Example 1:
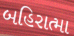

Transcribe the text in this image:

બહિરાત્મા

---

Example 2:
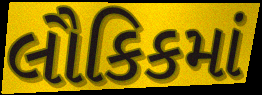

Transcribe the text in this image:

લૌકિકમાં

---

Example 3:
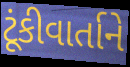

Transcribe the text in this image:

ટૂંકીવાર્તાને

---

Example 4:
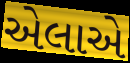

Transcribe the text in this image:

એલાએ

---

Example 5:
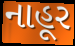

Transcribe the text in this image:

નાહૂર